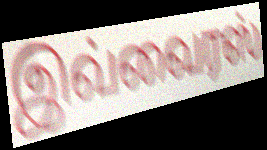
இவ்வைரஸ்